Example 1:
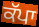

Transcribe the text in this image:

ਕੱਪਾ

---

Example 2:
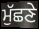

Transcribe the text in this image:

ਮੁੱਛਣੇ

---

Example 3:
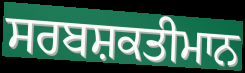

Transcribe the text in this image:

ਸਰਬਸ਼ਕਤੀਮਾਨ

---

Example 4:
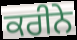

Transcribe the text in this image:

ਕਰੀਨੇ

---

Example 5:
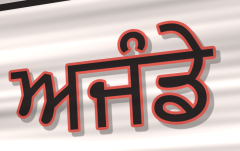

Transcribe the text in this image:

ਅਜੰਡੇ